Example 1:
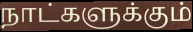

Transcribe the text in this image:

நாட்களுக்கும்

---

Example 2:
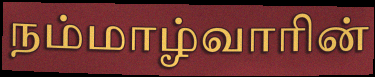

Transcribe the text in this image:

நம்மாழ்வாரின்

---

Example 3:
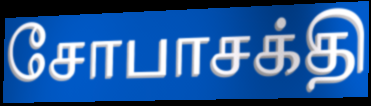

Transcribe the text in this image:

சோபாசக்தி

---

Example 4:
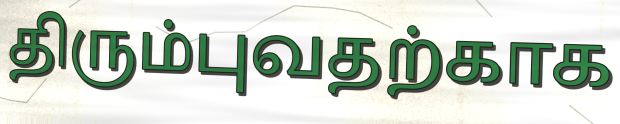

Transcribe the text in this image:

திரும்புவதற்காக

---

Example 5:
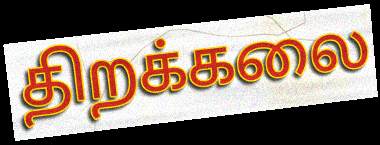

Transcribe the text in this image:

திறக்கலை